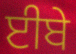
ਈਬੇ